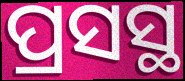
ପ୍ରସସ୍ଥ